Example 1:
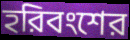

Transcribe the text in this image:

হরিবংশের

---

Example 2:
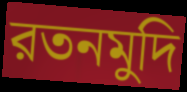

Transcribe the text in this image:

রতনমুদি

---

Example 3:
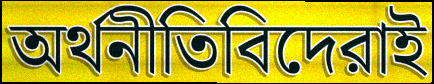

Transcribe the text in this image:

অর্থনীতিবিদেরাই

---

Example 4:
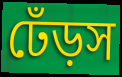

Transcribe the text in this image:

ঢেঁড়স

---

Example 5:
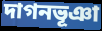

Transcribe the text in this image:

দাগনভূঞা